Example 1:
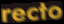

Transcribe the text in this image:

recto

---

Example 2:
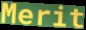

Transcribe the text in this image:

Merit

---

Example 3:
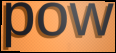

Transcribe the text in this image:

pow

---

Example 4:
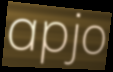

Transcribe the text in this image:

apjo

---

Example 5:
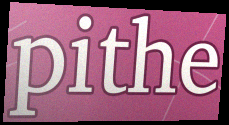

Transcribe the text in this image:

pithe